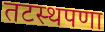
तटस्थपणा